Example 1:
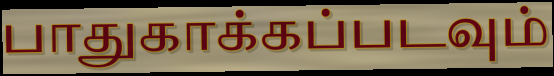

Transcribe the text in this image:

பாதுகாக்கப்படவும்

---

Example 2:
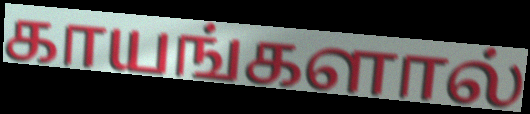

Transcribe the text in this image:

காயங்களால்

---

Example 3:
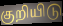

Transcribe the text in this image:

குறியிடு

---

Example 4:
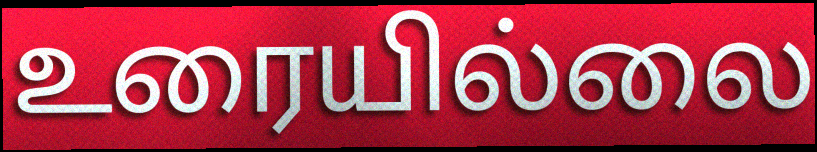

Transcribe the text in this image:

உரையில்லை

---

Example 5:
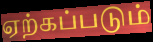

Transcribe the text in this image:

ஏற்கப்படும்